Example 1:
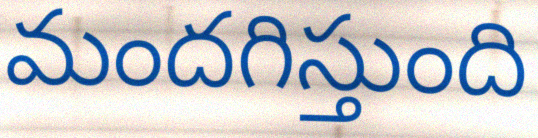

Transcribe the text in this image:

మందగిస్తుంది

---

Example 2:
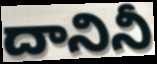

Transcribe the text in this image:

దానినీ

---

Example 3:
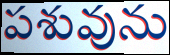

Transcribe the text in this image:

పశువును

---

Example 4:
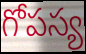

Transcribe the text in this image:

గోపస్య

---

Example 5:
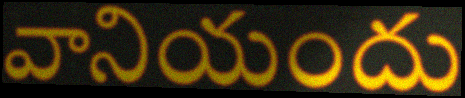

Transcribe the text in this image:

వానియందు